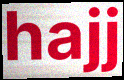
hajj